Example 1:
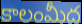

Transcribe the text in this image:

కాలంమీద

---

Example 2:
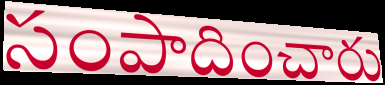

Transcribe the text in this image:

సంపాదించారు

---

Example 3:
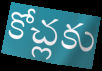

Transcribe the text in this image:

కోచ్లకు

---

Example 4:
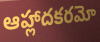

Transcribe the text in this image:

ఆహ్లాదకరమో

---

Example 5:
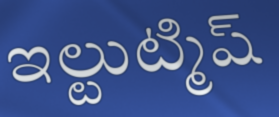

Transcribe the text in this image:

ఇల్టుట్మిష్